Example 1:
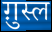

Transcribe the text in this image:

ग़ुस्ल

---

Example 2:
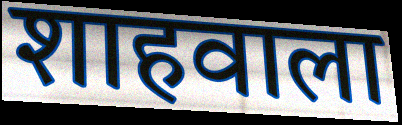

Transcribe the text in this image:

शाहवाला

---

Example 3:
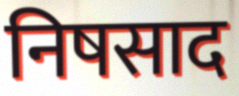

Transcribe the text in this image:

निषसाद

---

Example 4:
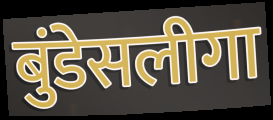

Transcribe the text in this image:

बुंडेसलीगा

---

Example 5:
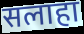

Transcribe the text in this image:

सलाहा